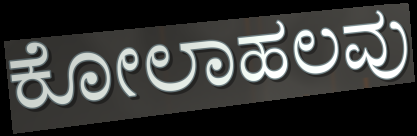
ಕೋಲಾಹಲವು